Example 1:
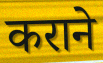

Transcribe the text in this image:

कराने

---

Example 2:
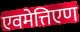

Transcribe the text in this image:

एवमेत्तिएण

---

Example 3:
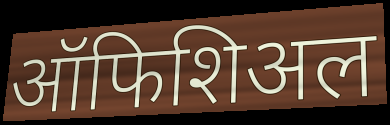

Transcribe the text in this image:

ऑफिशिअल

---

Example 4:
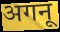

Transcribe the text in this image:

अगनू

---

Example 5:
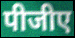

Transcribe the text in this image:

पीजीए